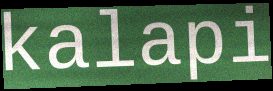
kalapi